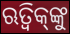
ଋତ୍ୱିକ୍‌ଙ୍କୁ